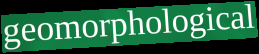
geomorphological